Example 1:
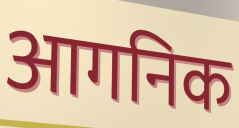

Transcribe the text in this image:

आगनिक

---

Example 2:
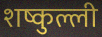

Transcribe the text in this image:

शष्कुल्ली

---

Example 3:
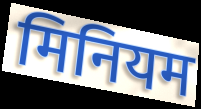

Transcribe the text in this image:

मिनियम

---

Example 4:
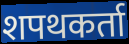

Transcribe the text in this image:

शपथकर्ता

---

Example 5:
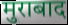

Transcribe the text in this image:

मुराबाद